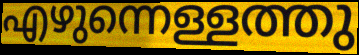
എഴുന്നെള്ളത്തു